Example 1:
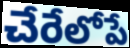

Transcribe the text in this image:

చేరేలోపే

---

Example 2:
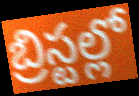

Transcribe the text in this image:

బ్రిస్టల్లో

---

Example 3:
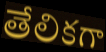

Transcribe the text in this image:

తేలికగా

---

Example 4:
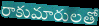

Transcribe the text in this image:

రాకుమారులతో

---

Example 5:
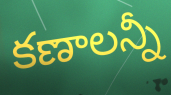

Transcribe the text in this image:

కణాలన్నీ